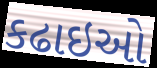
કઢાઇઓ